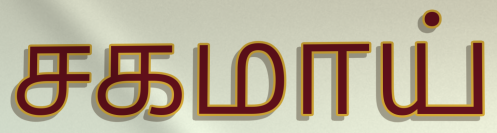
சகமாய்